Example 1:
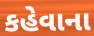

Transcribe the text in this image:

કહેવાના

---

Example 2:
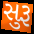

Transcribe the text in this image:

સુરૂ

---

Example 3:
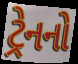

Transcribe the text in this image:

ટ્રેનનો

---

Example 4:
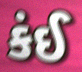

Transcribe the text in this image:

કંઈ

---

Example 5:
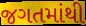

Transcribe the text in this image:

જગતમાંથી